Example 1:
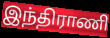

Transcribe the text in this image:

இந்திராணி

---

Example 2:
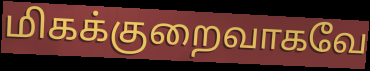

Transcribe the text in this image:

மிகக்குறைவாகவே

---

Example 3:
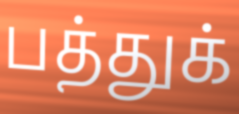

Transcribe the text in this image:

பத்துக்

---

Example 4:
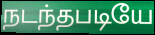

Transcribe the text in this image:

நடந்தபடியே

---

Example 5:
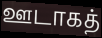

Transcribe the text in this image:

ஊடாகத்